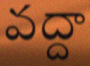
వద్దా